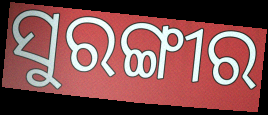
ସୁରଙ୍ଗୀର